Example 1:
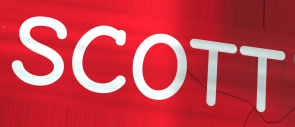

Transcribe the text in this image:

SCOTT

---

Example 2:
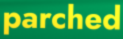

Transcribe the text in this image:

parched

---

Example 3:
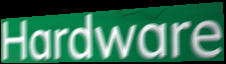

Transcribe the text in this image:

Hardware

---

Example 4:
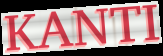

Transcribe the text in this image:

KANTI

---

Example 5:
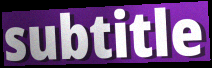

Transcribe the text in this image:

subtitle